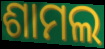
ଶାମଲ